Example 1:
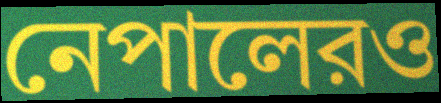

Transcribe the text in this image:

নেপালেরও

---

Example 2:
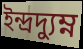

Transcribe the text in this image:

ইন্দ্রদ্যুম্ন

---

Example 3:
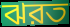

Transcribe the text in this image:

ঝরত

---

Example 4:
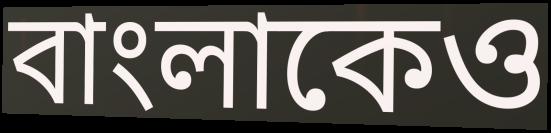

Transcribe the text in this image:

বাংলাকেও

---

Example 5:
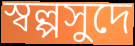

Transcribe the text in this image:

স্বল্পসুদে